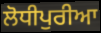
ਲੋਧੀਪੁਰੀਆ